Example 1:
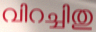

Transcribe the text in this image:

വിറച്ചിതു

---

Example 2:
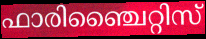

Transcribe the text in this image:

ഫാരിഞ്ചൈറ്റിസ്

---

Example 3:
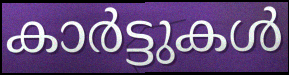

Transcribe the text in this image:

കാർട്ടുകൾ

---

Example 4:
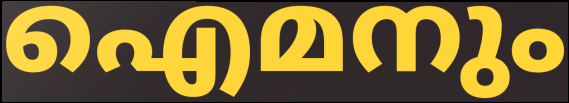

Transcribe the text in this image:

ഐമനും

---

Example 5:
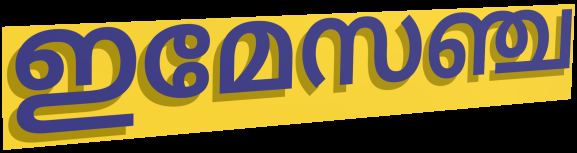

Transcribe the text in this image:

ഇമേസഞ്ച